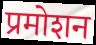
प्रमोशन